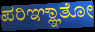
ಪರಿಞ್ಞಾತೋ